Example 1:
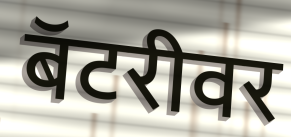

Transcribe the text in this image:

बॅटरीवर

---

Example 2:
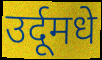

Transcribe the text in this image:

उर्दूमधे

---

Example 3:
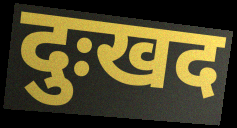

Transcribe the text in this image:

दुःखद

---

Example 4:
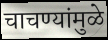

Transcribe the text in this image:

चाचण्यांमुळे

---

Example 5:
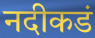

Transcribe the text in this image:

नदीकडं